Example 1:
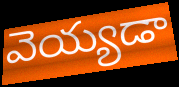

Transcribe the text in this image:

వెయ్యడా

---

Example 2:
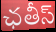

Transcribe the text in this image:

ఛతీస్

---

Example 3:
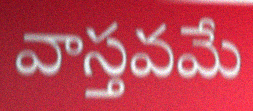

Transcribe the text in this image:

వాస్తవమే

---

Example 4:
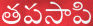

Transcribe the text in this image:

తపసాపి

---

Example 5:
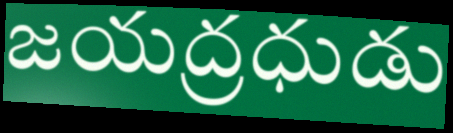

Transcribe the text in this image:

జయద్రధుడు